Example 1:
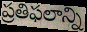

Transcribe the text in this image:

ప్రతిఫలాన్ని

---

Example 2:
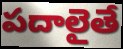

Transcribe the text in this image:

పదాలైతే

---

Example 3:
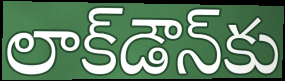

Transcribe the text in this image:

లాక్‌డౌన్‌కు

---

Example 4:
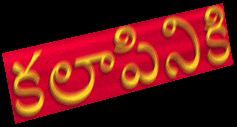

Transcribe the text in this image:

కలాపినికి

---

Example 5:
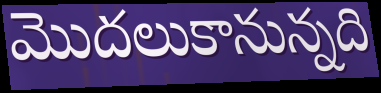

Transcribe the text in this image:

మొదలుకానున్నది